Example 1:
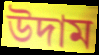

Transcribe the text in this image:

উদাম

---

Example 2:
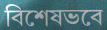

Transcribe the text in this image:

বিশেষভবে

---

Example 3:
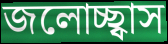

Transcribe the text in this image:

জলোচ্ছ্বাস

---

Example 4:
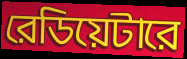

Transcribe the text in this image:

রেডিয়েটারে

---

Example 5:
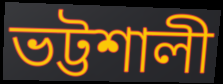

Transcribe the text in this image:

ভট্টশালী